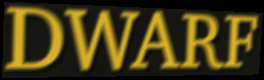
DWARF